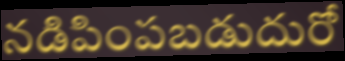
నడిపింపబడుదురో